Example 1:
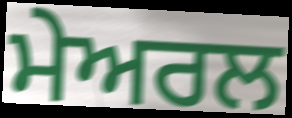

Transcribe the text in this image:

ਮੇਅਰਲ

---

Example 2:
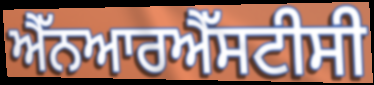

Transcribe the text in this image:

ਐੱਨਆਰਐੱਸਟੀਸੀ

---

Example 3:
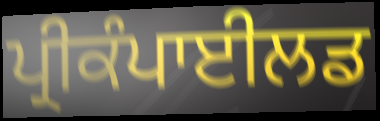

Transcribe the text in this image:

ਪ੍ਰੀਕੰਪਾਈਲਡ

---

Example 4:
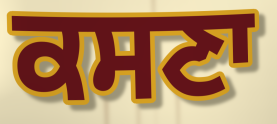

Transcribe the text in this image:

ਕਸਣਾ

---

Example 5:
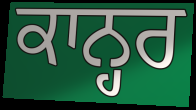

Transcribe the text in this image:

ਕਾਨ੍ਹਰ